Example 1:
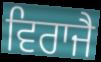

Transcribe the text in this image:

ਵਿਰਾਜੈ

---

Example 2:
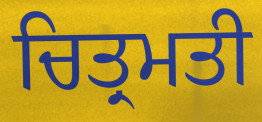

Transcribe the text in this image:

ਚਿਤ੍ਰਮਤੀ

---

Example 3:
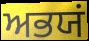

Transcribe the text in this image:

ਅਭਯਂ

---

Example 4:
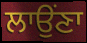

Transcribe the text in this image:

ਲਾਉਂਣਾ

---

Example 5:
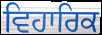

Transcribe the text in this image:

ਵਿਹਾਰਿਕ